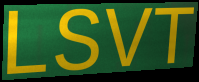
LSVT